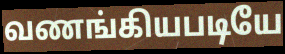
வணங்கியபடியே